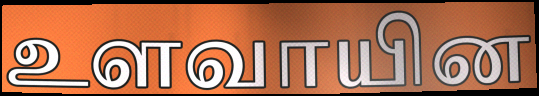
உளவாயின